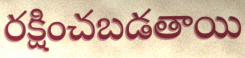
రక్షించబడతాయి